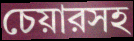
চেয়ারসহ